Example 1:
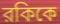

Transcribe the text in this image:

রকিকে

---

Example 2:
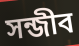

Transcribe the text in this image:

সন্জীব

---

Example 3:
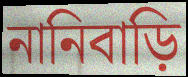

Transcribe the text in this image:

নানিবাড়ি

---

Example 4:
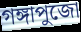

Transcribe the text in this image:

গঙ্গাপুজো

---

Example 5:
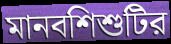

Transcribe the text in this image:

মানবশিশুটির